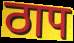
ठाप